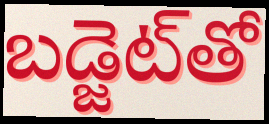
బడ్జెట్‌తో